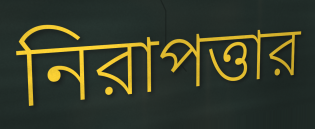
নিরাপত্তার